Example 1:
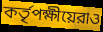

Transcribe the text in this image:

কর্তৃপক্ষীয়েরাও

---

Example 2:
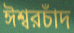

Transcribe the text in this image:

ঈশ্বরচাঁদ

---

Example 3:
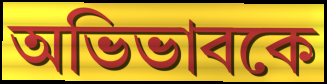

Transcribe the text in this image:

অভিভাবকে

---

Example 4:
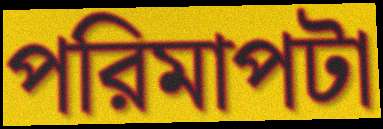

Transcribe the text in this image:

পরিমাপটা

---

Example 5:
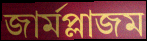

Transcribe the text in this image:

জার্মপ্লাজম